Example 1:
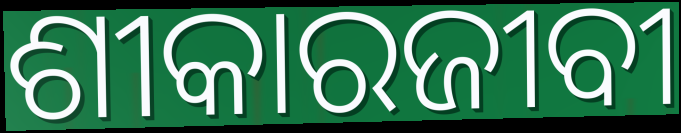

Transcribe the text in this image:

ଶୀକାରଜୀବୀ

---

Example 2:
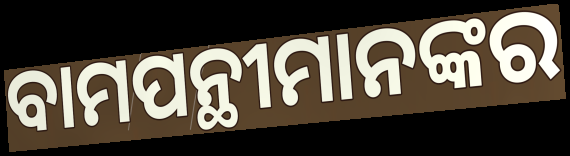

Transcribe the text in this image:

ବାମପନ୍ଥୀମାନଙ୍କର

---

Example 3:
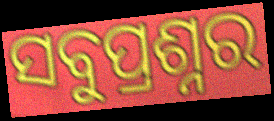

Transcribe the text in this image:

ସବୁପ୍ରଶ୍ନର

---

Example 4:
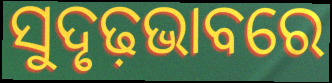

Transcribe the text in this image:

ସୁଦୃଢ଼ଭାବରେ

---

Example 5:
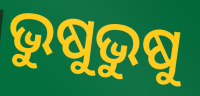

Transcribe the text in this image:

ଭୁଷୁଭୁଷୁ